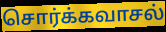
சொர்க்கவாசல்